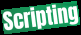
Scripting